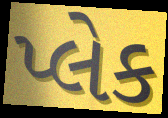
પ્લેક